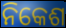
ନିକେଶ